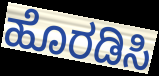
ಹೊರಡಿಸಿ